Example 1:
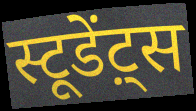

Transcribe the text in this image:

स्टूडेंट़्स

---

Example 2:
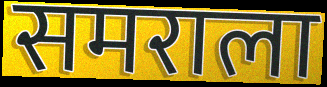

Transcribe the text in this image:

समराला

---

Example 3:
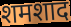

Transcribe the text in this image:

शमशाद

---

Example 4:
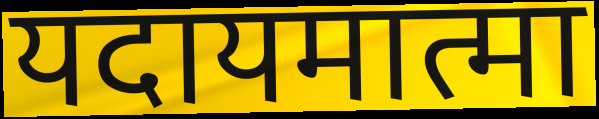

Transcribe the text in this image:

यदायमात्मा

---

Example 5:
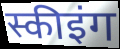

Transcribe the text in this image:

स्कीइंग